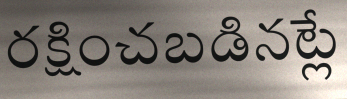
రక్షించబడినట్లే